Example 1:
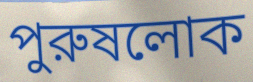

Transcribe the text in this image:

পুরুষলোক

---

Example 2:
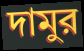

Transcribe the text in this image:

দামুর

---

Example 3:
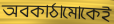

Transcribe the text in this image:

অবকাঠামোকেই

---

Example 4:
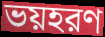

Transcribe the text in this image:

ভয়হরণ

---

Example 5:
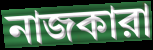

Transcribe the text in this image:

নাজকারা